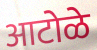
आटोळे